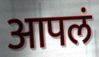
आपलं